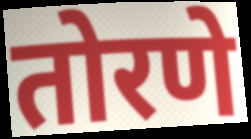
तोरणे